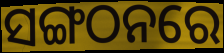
ସଙ୍ଗଠନରେ